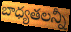
బాధ్యతలన్నీ